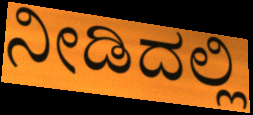
ನೀಡಿದಲ್ಲಿ